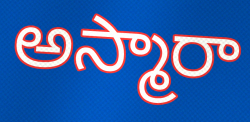
అస్మారా